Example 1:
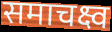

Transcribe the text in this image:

समाचक्ष्व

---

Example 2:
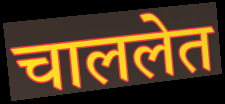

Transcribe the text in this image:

चाललेत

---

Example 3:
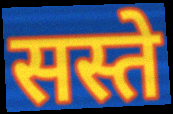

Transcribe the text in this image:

सस्ते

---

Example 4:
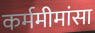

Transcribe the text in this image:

कर्ममीमांसा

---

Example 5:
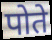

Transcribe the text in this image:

पोते